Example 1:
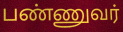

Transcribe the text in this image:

பண்ணுவர்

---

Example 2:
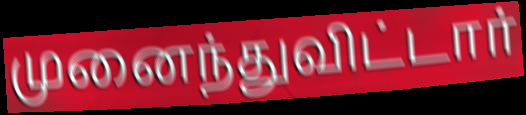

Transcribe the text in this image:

முனைந்துவிட்டார்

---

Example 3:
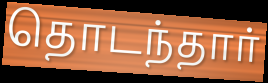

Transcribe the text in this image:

தொடந்தார்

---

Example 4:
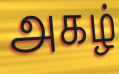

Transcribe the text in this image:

அகழ்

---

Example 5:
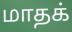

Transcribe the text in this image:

மாதக்